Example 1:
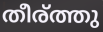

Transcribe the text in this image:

തീര്ത്തു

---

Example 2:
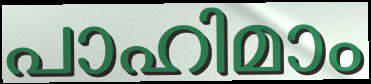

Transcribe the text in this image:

പാഹിമാം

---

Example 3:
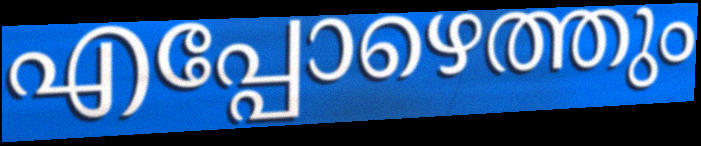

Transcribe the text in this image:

എപ്പോഴെത്തും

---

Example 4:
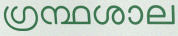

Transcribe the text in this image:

ഗ്രന്ഥശാല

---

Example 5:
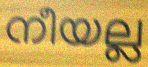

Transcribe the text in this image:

നീയല്ല